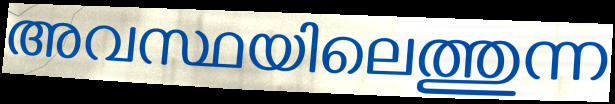
അവസ്ഥയിലെത്തുന്ന